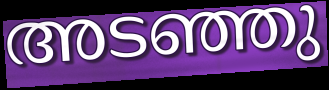
അടഞ്ഞു